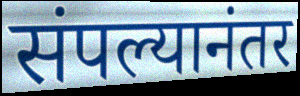
संपल्यानंतर